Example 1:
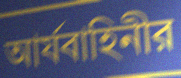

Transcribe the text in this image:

আর্যবাহিনীর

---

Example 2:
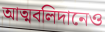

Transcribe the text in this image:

আত্মবলিদানেও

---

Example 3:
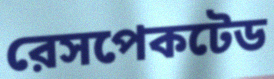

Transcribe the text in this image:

রেসপেকটেড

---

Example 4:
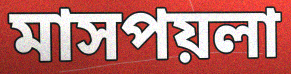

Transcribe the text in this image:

মাসপয়লা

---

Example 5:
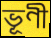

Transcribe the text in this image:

ভূণী